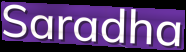
Saradha